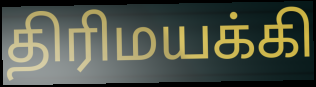
திரிமயக்கி